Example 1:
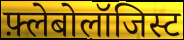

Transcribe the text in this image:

फ़्लेबोलॉजिस्ट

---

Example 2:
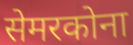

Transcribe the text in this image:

सेमरकोना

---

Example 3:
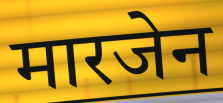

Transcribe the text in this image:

मारजेन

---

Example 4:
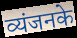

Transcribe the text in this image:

व्यंजनके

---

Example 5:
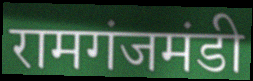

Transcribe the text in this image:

रामगंजमंडी